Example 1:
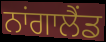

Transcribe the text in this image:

ਨਾਂਗਾਲੈਂਡ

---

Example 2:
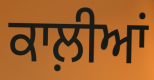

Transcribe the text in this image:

ਕਾਲ਼ੀਆਂ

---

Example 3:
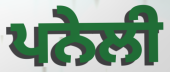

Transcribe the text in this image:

ਪਨੇਲੀ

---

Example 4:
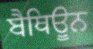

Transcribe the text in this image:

ਬੈਥਿਊਨ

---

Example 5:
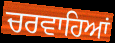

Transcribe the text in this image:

ਚਰਵਾਹਿਆਂ